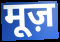
मूज़